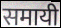
समायी